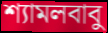
শ্যামলবাবু